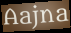
Aajna